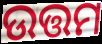
ଉତ୍ତମ